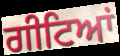
ਗੀਟਿਆਂ